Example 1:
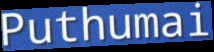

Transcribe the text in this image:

Puthumai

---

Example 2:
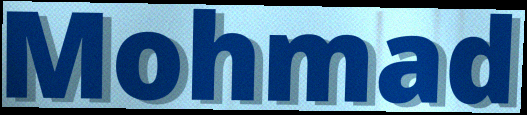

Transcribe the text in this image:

Mohmad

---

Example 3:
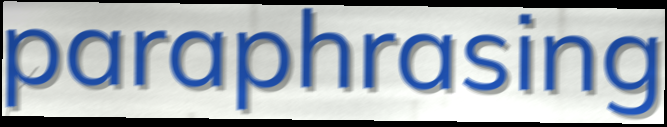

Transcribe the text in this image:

paraphrasing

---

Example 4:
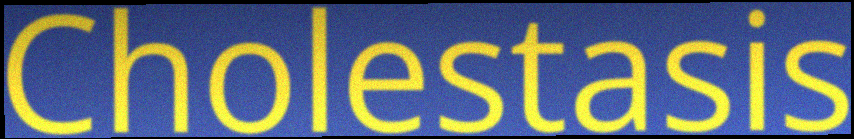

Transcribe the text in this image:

Cholestasis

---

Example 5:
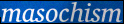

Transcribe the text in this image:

masochism